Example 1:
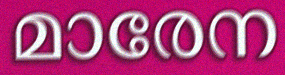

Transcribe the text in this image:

മാരേന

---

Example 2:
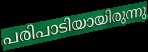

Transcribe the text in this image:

പരിപാടിയായിരുന്നു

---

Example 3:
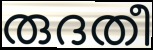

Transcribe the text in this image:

രുദതീ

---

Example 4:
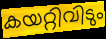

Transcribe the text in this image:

കയറ്റിവിടും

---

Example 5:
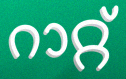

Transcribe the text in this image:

റാറ്റ്